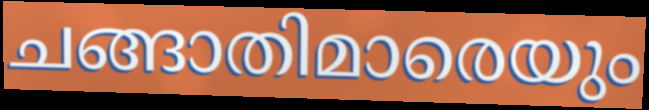
ചങ്ങാതിമാരെയും